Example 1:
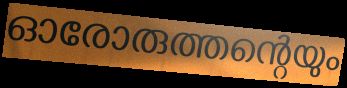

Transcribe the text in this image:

ഓരോരുത്തന്റെയും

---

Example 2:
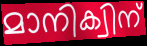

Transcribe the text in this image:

മാനിക്വിന്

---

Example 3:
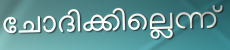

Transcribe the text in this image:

ചോദിക്കില്ലെന്ന്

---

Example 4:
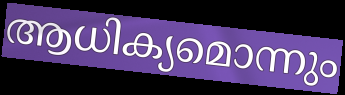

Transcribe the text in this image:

ആധിക്യമൊന്നും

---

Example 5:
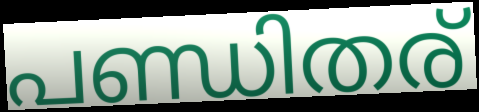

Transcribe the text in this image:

പണ്ഡിതര്